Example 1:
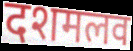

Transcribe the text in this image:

दशमलव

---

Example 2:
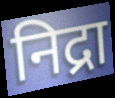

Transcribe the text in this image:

निद्रा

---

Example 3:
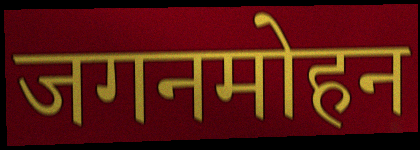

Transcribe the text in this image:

जगनमोहन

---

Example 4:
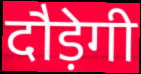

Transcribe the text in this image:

दौड़ेगी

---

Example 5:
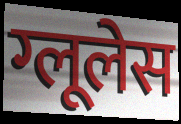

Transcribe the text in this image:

ग्लूलेस